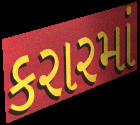
કરારમાં